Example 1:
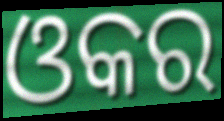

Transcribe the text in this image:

ଓକର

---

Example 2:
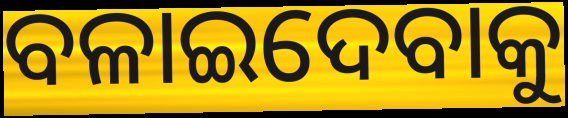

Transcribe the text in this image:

ବଳାଇଦେବାକୁ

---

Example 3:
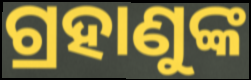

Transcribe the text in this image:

ଗ୍ରହାଣୁଙ୍କ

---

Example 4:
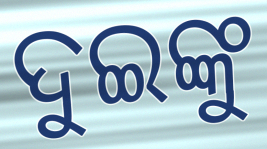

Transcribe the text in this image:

ଦୁଇଙ୍କୁ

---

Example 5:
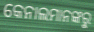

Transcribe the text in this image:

କେନାଲମାନଙ୍କରୁ